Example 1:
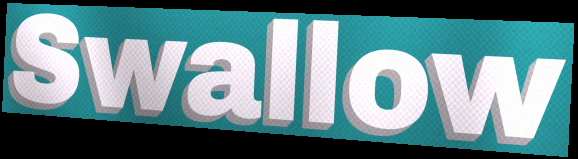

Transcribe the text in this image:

Swallow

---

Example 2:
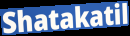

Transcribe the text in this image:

Shatakatil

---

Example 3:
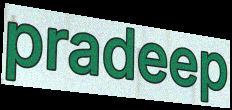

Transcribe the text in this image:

pradeep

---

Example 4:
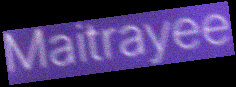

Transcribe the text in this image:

Maitrayee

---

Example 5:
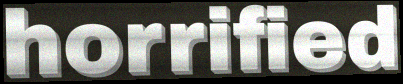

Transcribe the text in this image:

horrified